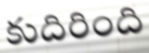
కుదిరింది